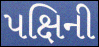
પક્ષિની